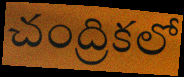
చంద్రికలో